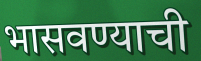
भासवण्याची